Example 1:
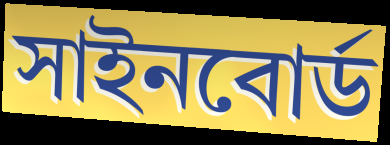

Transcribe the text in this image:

সাইনবোর্ড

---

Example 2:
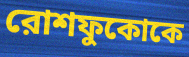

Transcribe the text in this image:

রোশফুকোকে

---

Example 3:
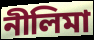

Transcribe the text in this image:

নীলিমা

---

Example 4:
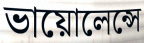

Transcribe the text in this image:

ভায়োলেন্সে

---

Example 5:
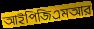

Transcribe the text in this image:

আইপিজিএমআর